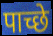
पाच्छे